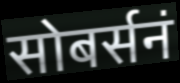
सोबर्सनं